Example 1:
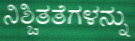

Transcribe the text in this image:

ನಿಶ್ಚಿತತೆಗಳನ್ನು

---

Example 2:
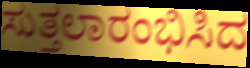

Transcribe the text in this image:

ಸುತ್ತಲಾರಂಭಿಸಿದ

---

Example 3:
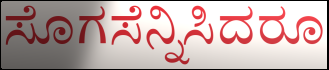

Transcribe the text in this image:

ಸೊಗಸೆನ್ನಿಸಿದರೂ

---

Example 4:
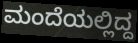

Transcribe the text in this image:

ಮಂದೆಯಲ್ಲಿದ್ದ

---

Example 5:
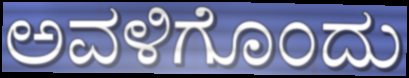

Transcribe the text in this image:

ಅವಳಿಗೊಂದು